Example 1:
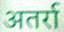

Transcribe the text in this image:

अतर्रा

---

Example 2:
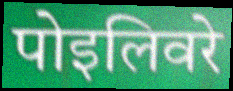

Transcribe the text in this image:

पोइलिवरे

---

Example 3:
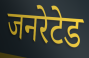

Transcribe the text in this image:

जनरेटेड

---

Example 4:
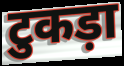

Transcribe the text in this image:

टुकड़ा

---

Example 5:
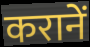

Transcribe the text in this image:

करानें